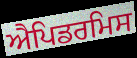
ਐਪਿਡਰਮਿਸ